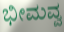
ಭೀಮವ್ವ